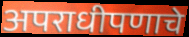
अपराधीपणाचे